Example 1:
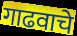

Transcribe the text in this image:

गाढवाचे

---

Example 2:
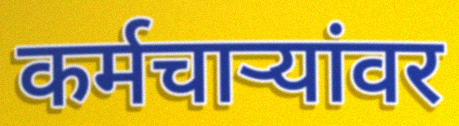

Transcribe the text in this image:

कर्मचार्‍यांवर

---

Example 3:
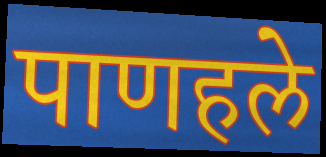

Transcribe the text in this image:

पाणहले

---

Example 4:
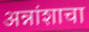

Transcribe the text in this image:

अन्नांशाचा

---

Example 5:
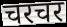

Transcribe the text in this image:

चरचर